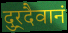
दुर्दैवानं